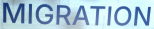
MIGRATION